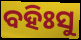
ବହିଃସୁ